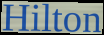
Hilton